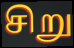
சிறு